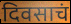
दिवसाचं